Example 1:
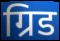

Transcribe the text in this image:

ग्रिड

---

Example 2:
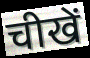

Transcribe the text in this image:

चीखें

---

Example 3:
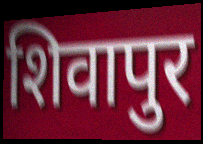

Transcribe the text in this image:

शिवापुर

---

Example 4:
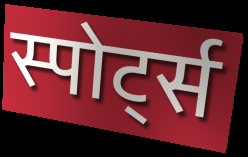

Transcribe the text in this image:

स्पोर्ट्स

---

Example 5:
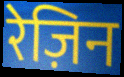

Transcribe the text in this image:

रेज़िन